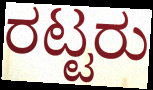
ರಟ್ಟರು